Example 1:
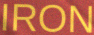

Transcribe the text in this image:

IRON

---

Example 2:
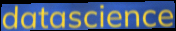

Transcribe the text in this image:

datascience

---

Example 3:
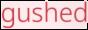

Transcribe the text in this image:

gushed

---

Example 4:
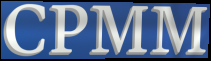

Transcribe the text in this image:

CPMM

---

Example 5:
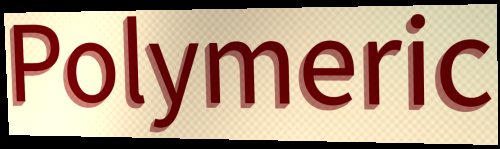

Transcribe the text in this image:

Polymeric